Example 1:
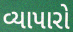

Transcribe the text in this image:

વ્યાપારો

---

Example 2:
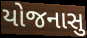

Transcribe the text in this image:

યોજનાસુ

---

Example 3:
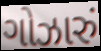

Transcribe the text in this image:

ગોઝારું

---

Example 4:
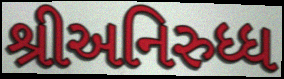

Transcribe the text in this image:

શ્રીઅનિરુધ્ધ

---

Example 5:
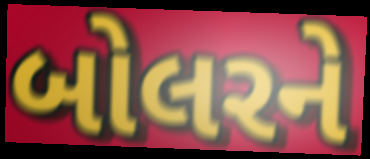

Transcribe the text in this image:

બોલરને